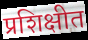
प्रशिक्षीत